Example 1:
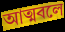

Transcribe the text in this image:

আত্মবলে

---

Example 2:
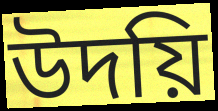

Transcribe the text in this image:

উদয়ি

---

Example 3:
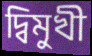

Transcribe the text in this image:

দ্বিমুখী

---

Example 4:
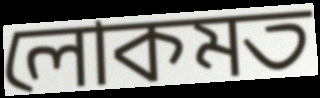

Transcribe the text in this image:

লোকমত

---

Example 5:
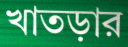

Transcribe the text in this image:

খাতড়ার